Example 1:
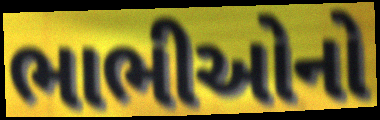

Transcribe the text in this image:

ભાભીઓનો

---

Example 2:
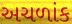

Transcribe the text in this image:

અચળાંક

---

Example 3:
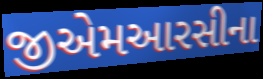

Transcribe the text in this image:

જીએમઆરસીના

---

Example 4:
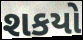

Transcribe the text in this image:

શકયો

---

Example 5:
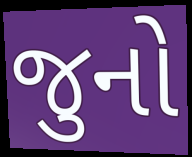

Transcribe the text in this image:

જુનો